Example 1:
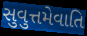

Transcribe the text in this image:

સુવુત્તમેવાતિ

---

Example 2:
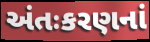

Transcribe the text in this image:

અંતઃકરણનાં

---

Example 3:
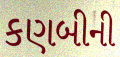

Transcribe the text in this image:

કણબીની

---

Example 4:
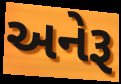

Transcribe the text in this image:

અનેરૂ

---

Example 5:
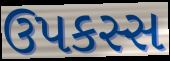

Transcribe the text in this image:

ઉપકસ્સ